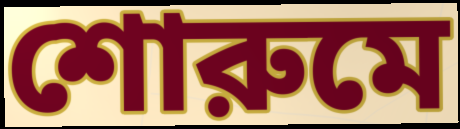
শোরুমে